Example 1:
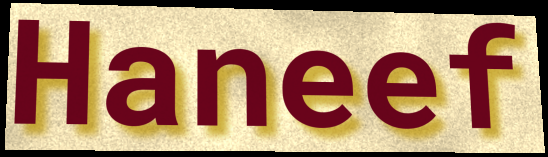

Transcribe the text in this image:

Haneef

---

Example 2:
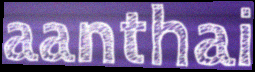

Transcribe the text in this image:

aanthai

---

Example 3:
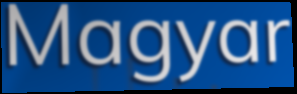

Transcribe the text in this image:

Magyar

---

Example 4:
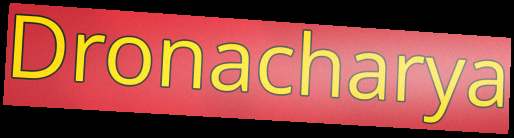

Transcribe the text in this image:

Dronacharya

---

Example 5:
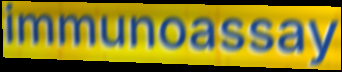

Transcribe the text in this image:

immunoassay